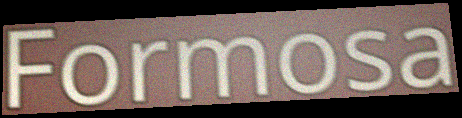
Formosa